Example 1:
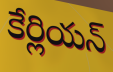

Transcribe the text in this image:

కేర్లియన్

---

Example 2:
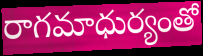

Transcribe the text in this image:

రాగమాధుర్యంతో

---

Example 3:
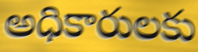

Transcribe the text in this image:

అధికారులకు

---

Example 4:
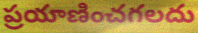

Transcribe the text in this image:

ప్రయాణించగలదు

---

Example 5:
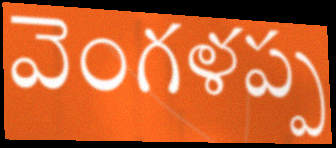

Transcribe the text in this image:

వెంగళప్ప